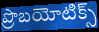
ప్రొబయోటిక్స్